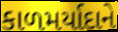
કાળમર્યાદાને